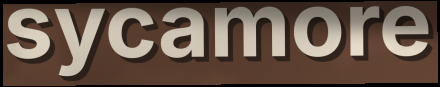
sycamore